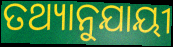
ତଥ୍ୟାନୁଯାୟୀ